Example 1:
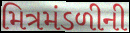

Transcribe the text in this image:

મિત્રમંડળીની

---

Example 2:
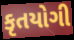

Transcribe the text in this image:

કૃતયોગી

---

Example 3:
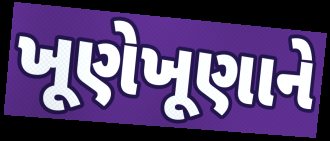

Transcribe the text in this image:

ખૂણેખૂણાને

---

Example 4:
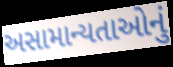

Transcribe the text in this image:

અસામાન્યતાઓનું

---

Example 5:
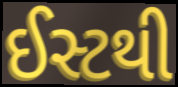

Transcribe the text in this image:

ઈસ્ટથી